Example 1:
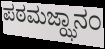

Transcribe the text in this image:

ಪಠಮಜ್ಝಾನಂ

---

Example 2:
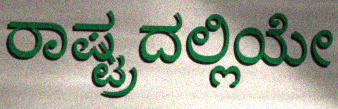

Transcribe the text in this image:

ರಾಷ್ಟ್ರದಲ್ಲಿಯೇ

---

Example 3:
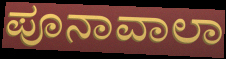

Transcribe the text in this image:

ಪೂನಾವಾಲಾ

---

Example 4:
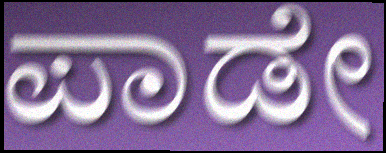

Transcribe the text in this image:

ಪಾಡೇ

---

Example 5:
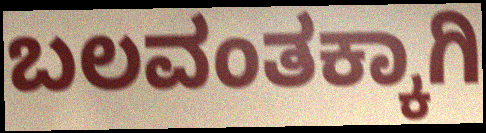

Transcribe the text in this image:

ಬಲವಂತಕ್ಕಾಗಿ